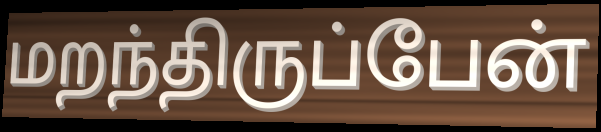
மறந்திருப்பேன்